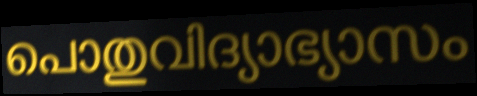
പൊതുവിദ്യാഭ്യാസം